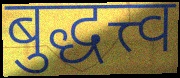
बुद्धत्त्व